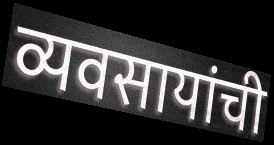
व्यवसायांची